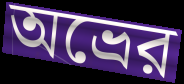
অভ্রের